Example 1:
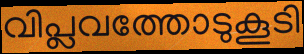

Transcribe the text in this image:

വിപ്ലവത്തോടുകൂടി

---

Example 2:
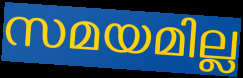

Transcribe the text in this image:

സമയമില്ല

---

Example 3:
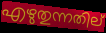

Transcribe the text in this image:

എഴുതുന്നതില്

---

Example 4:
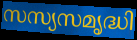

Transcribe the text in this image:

സസ്യസമൃദ്ധി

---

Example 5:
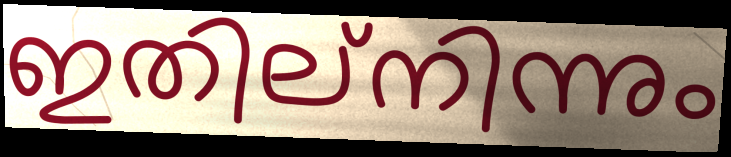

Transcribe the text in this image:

ഇതില്നിന്നും